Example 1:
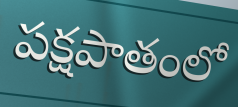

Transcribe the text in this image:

పక్షపాతంలో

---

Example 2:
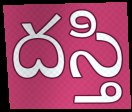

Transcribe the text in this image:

దస్తి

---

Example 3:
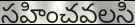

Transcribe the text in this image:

సహించవలసి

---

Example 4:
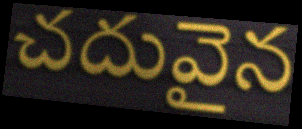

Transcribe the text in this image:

చదువైన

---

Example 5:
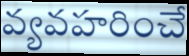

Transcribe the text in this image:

వ్యవహరించే